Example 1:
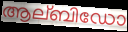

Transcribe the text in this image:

ആല്ബിഡോ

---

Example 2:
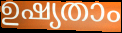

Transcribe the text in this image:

ഉഷ്യതാം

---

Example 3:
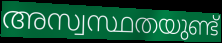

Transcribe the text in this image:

അസ്വസ്ഥതയുണ്ട്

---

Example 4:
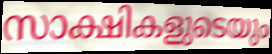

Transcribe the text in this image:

സാക്ഷികളുടെയും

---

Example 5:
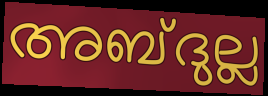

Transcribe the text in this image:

അബ്ദുല്ല